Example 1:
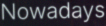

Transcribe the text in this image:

Nowadays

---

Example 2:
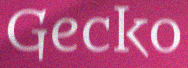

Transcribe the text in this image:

Gecko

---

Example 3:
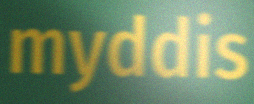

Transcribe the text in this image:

myddis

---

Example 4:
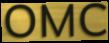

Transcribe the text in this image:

OMC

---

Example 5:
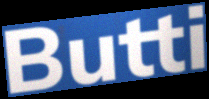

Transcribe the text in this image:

Butti